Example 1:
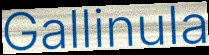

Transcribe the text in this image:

Gallinula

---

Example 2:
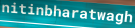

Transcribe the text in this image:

nitinbharatwagh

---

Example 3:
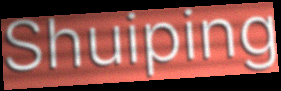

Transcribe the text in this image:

Shuiping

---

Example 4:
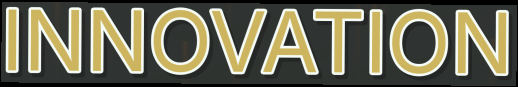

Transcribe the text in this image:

INNOVATION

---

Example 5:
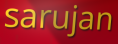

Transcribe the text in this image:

sarujan